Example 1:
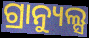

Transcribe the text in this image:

ଗ୍ରାନ୍ୟୁଲ୍ସ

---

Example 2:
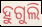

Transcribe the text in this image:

ହୁଗୁଲି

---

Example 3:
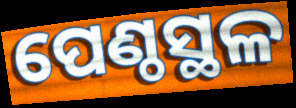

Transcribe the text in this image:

ପେଣ୍ଠସ୍ଥଳ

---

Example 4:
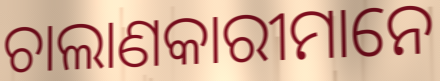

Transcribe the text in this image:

ଚାଲାଣକାରୀମାନେ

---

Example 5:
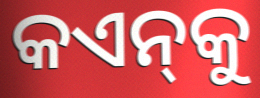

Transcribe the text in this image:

କଏନ୍‌କୁ